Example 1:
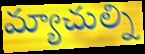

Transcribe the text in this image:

మ్యాచుల్ని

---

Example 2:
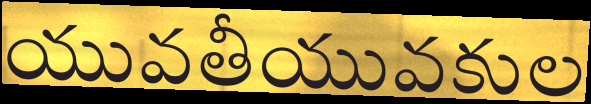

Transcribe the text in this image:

యువతీయువకుల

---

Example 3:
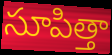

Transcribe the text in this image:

సూపిత్తా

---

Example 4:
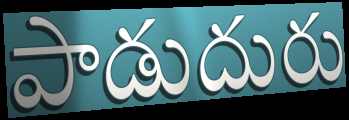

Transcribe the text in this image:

పాడుదురు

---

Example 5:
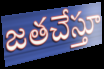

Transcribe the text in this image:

జతచేస్తూ